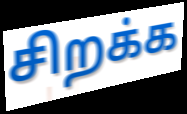
சிறக்க